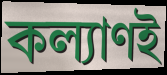
কল্যাণই